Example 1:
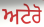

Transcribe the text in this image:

ਅਟੇਰੋ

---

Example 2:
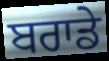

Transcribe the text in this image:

ਬਰਾਡੇ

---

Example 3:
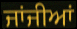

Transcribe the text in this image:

ਜਾਂਜੀਆਂ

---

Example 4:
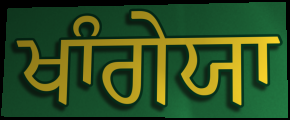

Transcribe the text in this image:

ਖਾੰਗੇਯਾ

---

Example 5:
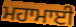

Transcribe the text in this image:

ਮਹਾਮਾਈ